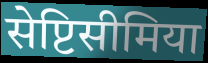
सेप्टिसीमिया